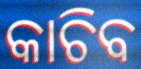
କାଚିବ